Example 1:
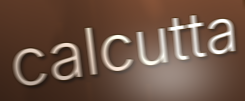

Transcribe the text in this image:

calcutta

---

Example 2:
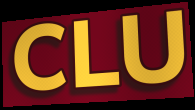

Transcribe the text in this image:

CLU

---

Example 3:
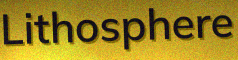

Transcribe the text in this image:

Lithosphere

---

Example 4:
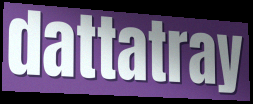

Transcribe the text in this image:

dattatray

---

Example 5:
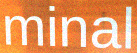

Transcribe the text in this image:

minal